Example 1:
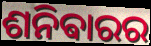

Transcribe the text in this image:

ଶନିଵାରର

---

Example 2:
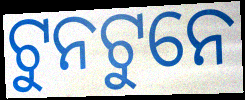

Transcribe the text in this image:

ଟୁନଟୁନେ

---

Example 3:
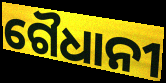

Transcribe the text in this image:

ଗୈଧାନୀ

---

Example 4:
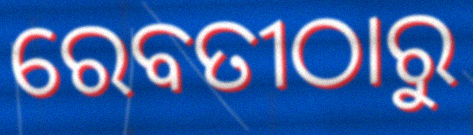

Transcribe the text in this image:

ରେବତୀଠାରୁ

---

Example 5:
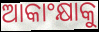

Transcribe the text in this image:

ଆକାଂକ୍ଷାକୁ